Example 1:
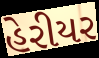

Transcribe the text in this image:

હેરીયર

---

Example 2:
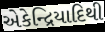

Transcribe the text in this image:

એકેન્દ્રિયાદિથી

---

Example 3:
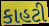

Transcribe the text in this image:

કાહટી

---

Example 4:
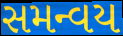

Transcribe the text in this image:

સમન્વય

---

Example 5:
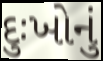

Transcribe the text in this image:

દુઃખોનું